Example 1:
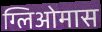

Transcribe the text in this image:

ग्लिओमास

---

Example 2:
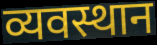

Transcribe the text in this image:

व्यवस्थान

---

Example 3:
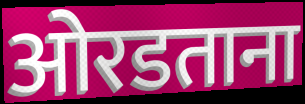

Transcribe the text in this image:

ओरडताना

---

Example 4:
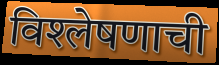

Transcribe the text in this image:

विश्लेषणाची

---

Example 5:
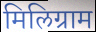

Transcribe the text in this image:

मिलिग्राम